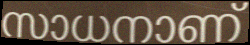
സാധനാണ്